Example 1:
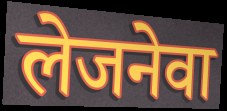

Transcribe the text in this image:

लेजनेवा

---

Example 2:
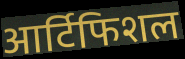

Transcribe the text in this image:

आर्टिफिशल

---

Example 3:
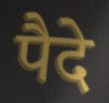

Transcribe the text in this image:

पैदे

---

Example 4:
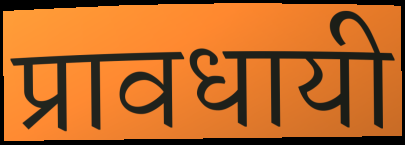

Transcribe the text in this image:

प्रावधायी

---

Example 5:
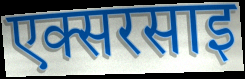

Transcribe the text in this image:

एक्सरसाइ